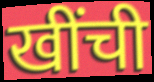
खींची